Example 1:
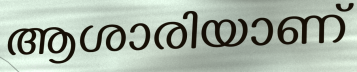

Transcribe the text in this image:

ആശാരിയാണ്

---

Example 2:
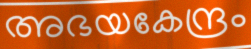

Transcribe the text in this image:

അഭയകേന്ദ്രം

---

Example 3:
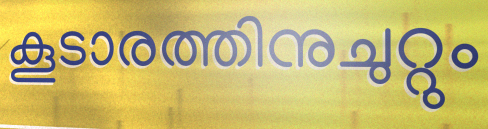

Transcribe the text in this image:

കൂടാരത്തിനുചുറ്റും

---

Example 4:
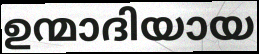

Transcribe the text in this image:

ഉന്മാദിയായ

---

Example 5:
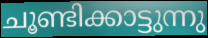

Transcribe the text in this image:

ചൂണ്ടിക്കാട്ടുന്നു